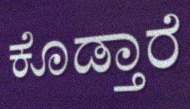
ಕೊಡ್ತಾರೆ